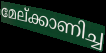
മേല്ക്കാണിച്ച